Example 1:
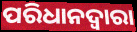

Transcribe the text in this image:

ପରିଧାନଦ୍ୱାରା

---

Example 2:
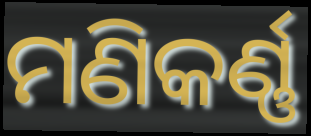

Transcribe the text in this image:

ମଣିକର୍ଣ୍ଣ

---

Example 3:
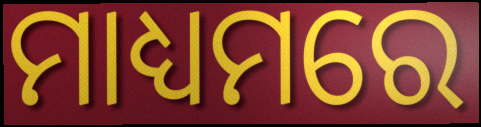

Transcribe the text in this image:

ମାଧ୍ୟମରେ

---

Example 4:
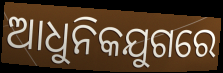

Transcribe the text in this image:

ଆଧୁନିକଯୁଗରେ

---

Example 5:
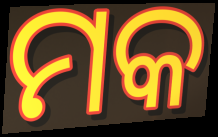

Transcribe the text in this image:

ମକ